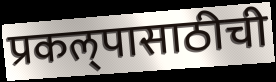
प्रकल्पासाठीची